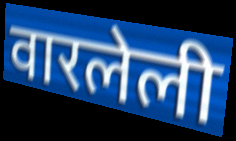
वारलेली